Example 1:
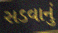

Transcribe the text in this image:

સડવાનું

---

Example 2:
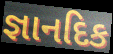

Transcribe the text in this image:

જ્ઞાનદિક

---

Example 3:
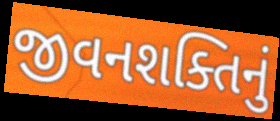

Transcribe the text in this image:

જીવનશક્તિનું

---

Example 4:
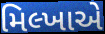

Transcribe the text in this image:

મિલ્ખાએ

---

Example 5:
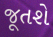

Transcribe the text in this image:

જૂતશે